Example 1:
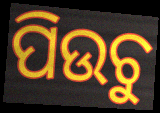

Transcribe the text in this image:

ପିଉଚୁ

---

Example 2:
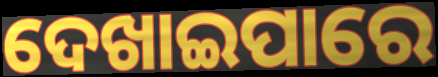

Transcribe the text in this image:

ଦେଖାଇପାରେ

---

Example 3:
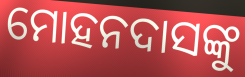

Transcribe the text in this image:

ମୋହନଦାସଙ୍କୁ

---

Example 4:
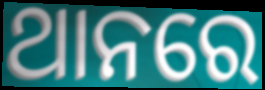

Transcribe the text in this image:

ଥାନରେ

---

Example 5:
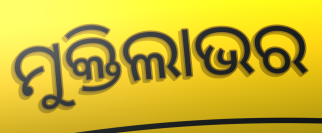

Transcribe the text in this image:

ମୁକ୍ତିଲାଭର